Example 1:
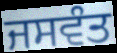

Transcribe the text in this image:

ਜਸਵੰਤ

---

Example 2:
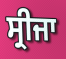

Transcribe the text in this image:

ਸ੍ਰੀਜਾ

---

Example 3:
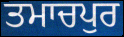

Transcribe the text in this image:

ਤਮਾਚਪੁਰ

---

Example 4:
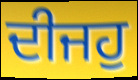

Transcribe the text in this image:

ਦੀਜਹੁ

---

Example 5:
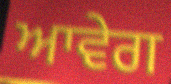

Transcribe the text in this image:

ਆਵੇਗ